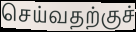
செய்வதற்குச்